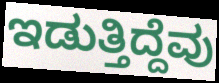
ಇಡುತ್ತಿದ್ದೆವು